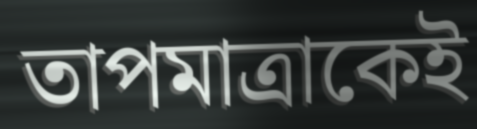
তাপমাত্রাকেই